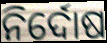
ନିର୍ଦୋଷ